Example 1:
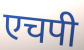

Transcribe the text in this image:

एचपी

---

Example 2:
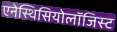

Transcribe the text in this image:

एनेस्थिसियोलॉजिस्ट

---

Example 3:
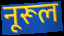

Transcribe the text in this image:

नूरूल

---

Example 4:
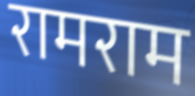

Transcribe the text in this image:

रामराम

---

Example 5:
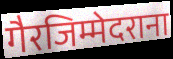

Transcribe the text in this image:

गैरजिम्मेदराना